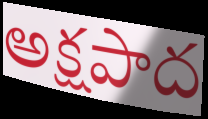
అక్షపాద